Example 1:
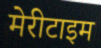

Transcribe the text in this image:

मेरीटाइम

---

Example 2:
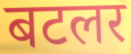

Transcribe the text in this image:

बटलर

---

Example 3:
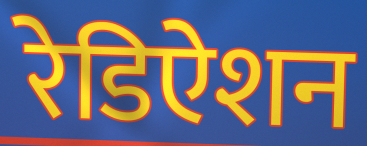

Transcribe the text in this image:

रेडिऐशन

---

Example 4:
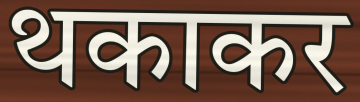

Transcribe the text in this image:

थकाकर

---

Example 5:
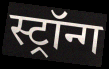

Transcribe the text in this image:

स्ट्रॉन्ग